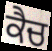
ਕੈਚ